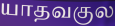
யாதவகுல